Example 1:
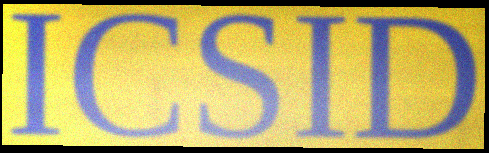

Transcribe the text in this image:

ICSID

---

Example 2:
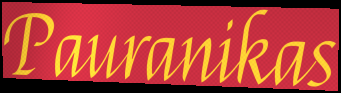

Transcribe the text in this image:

Pauranikas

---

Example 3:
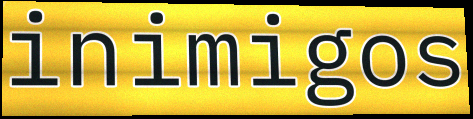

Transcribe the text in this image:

inimigos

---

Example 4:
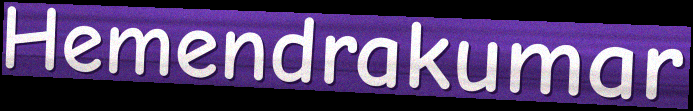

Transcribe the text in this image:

Hemendrakumar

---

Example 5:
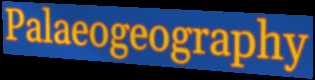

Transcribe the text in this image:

Palaeogeography